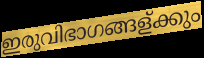
ഇരുവിഭാഗങ്ങള്ക്കും